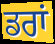
ਡਰਾਂ